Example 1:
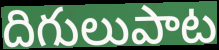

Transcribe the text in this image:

దిగులుపాట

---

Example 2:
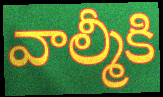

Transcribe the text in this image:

వాల్మీకి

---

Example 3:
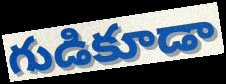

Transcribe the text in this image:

గుడికూడా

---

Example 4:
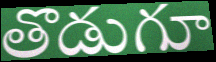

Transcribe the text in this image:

తొడుగూ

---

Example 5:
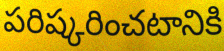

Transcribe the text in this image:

పరిష్కరించటానికి